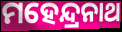
ମହେନ୍ଦ୍ରନାଥ